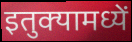
इतुक्यामध्यें